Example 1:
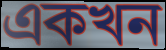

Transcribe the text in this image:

একখন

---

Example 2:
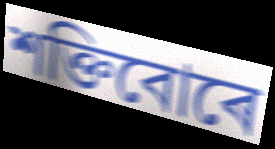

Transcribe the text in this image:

শক্তিবোৰে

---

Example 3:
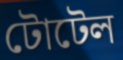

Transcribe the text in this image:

টোটেল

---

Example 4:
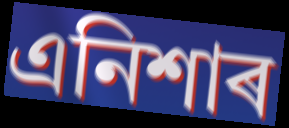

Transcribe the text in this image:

এনিশাৰ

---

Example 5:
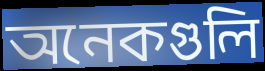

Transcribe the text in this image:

অনেকগুলি